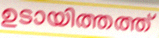
ഉടായിത്തത്ത്